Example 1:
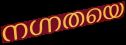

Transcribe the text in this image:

നഗ്നതയെ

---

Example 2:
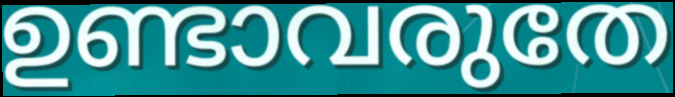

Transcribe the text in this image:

ഉണ്ടാവരുതേ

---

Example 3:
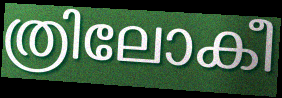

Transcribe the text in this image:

ത്രിലോകീ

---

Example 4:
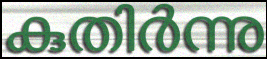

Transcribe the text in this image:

കുതിർന്നു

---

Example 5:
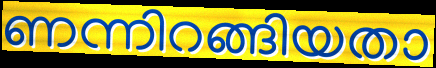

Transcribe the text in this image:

ണന്നിറങ്ങിയതാ